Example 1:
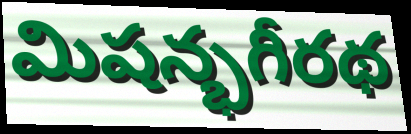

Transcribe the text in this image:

మిషన్భగీరథ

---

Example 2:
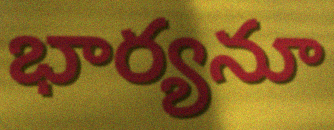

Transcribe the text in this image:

భార్యనూ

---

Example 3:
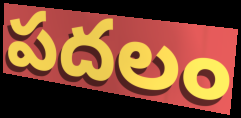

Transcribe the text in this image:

పదలం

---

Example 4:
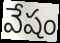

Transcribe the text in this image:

వేషం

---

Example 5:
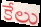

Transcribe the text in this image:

కేలు